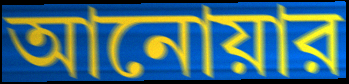
আনোয়ার